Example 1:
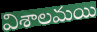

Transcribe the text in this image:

విశాలమయి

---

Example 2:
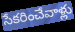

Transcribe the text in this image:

సేకరించేవాళ్లు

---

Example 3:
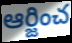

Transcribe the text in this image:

ఆర్జించ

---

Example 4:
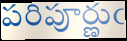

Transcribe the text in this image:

పరిపూర్ణుఁ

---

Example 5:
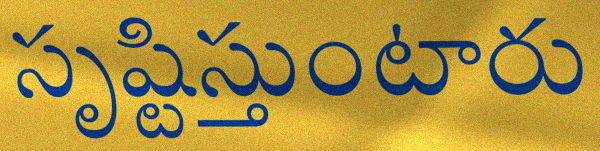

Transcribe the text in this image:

సృష్టిస్తుంటారు